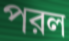
পরল